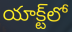
యాక్ట్‌లో